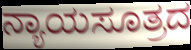
ನ್ಯಾಯಸೂತ್ರದ